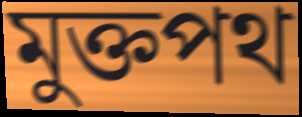
মুক্তপথ